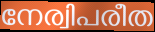
നേര്വിപരീത